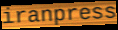
iranpress